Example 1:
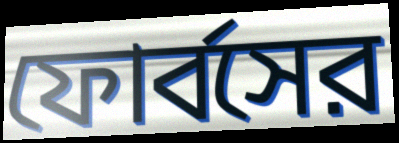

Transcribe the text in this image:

ফোর্বসের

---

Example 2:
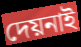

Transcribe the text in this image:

দেয়নাই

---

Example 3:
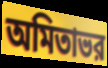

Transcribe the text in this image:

অমিতাভর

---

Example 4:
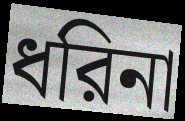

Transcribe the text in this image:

ধরিনা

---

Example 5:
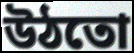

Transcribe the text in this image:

উঠতো